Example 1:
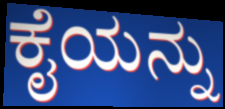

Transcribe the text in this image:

ಕೈಯನ್ನು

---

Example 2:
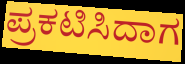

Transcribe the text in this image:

ಪ್ರಕಟಿಸಿದಾಗ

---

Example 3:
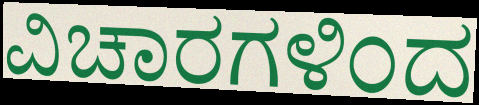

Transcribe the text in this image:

ವಿಚಾರಗಳಿಂದ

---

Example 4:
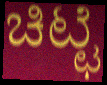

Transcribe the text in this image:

ಚಿಟ್ಟೆ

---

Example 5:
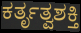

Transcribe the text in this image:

ಕರ್ತೃತ್ವಶಕ್ತಿ